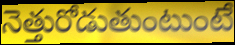
నెత్తురోడుతుంటుంటే